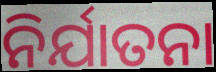
ନିର୍ଯାତନା